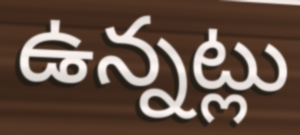
ఉన్నట్లు